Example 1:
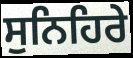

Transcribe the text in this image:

ਸੁਨਿਹਿਰੇ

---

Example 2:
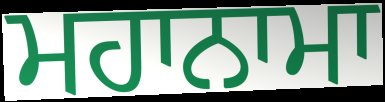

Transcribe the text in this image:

ਮਹਾਨਾਮਾ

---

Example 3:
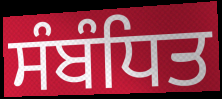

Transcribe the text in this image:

ਸੰਬੰਧਿਤ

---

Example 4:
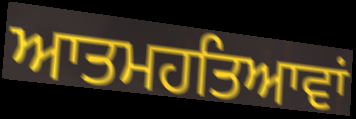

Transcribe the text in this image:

ਆਤਮਹਤਿਆਵਾਂ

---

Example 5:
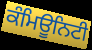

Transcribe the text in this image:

ਕੰਮਿਊਨਿਟੀ